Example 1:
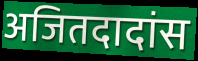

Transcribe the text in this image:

अजितदादांस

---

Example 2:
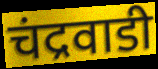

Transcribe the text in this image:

चंद्रवाडी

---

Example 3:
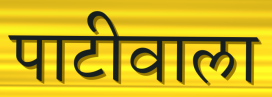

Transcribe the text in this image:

पाटीवाला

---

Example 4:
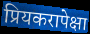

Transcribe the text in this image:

प्रियकरापेक्षा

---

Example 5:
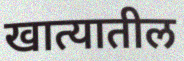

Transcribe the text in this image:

खात्यातील